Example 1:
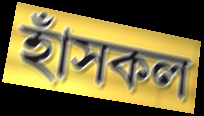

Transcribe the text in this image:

হাঁসকল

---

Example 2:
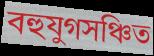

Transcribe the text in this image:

বহুযুগসঞ্চিত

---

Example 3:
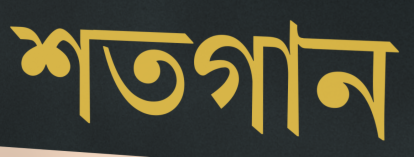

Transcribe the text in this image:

শতগান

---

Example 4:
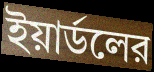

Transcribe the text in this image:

ইয়ার্ডলের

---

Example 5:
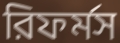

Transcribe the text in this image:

রিফর্মস